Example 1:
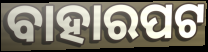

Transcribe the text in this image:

ବାହାରପଟ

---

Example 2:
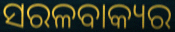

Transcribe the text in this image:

ସରଳବାକ୍ୟର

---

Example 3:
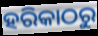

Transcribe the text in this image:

ହରିକାଠରୁ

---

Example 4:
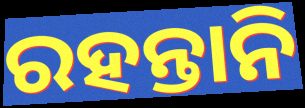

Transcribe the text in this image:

ରହନ୍ତାନି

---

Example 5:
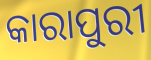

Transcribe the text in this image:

କାରାପୁରୀ